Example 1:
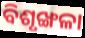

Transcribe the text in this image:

ବିଶୃଙ୍ଖଳା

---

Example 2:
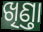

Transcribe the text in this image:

ଖିଣ୍ତା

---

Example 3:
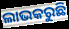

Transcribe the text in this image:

ଲାଭକରୁଛି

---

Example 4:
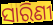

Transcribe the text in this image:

ସାରିଣୀ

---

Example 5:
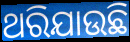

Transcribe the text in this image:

ଥରିଯାଉଛି